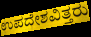
ಉಪದೇಶವಿತ್ತರು